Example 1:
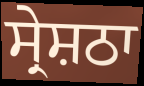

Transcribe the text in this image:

ਸ੍ਰੇਸ਼ਠਾ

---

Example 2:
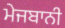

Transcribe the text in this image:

ਮੇਜਬਾਨੀ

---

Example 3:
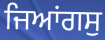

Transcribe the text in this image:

ਜਿਆਂਗਸੁ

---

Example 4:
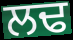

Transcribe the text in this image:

ਲਢ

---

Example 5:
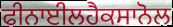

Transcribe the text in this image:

ਫੀਨਾਈਲਹੈਕਸਾਨੋਲ